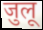
जुलू